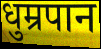
धुम्रपान